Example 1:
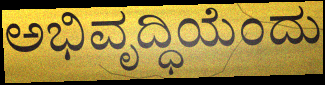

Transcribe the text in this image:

ಅಭಿವೃದ್ಧಿಯೆಂದು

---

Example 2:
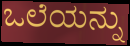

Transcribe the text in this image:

ಒಲೆಯನ್ನು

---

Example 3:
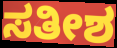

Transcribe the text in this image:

ಸತೀಶ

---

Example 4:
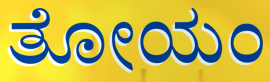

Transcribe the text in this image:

ತೋಯಂ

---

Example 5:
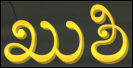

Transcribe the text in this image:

ಖುಶಿ